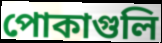
পোকাগুলি